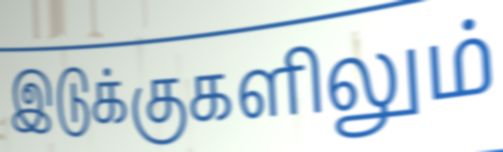
இடுக்குகளிலும்